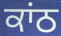
ਕਾਂਠ